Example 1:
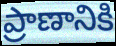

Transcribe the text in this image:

ప్రాణానికి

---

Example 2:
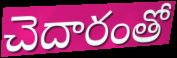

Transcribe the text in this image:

చెదారంతో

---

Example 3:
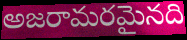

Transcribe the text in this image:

అజరామరమైనది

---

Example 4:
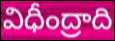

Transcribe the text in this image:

విధీంద్రాది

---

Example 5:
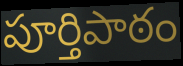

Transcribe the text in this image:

పూర్తిపాఠం